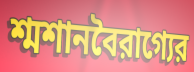
শ্মশানবৈরাগ্যের